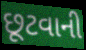
છૂટવાની